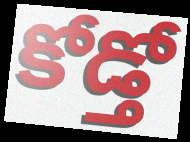
కోడ్తో